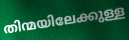
തിന്മയിലേക്കുള്ള